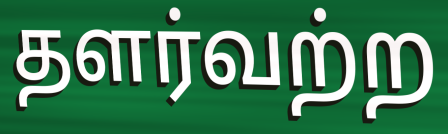
தளர்வற்ற